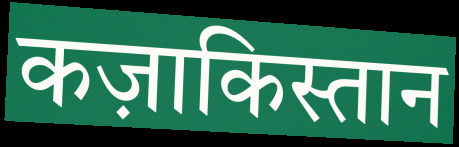
कज़ाकिस्तान